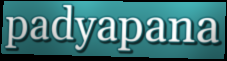
padyapana